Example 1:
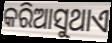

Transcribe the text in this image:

କରିଆସୁଥାଏ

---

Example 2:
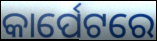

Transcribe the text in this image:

କାର୍ପେଟରେ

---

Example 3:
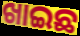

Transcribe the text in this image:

ଖାଇଛ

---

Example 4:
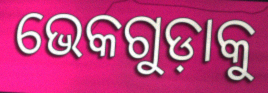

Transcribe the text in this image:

ଭେକଗୁଡ଼ାକୁ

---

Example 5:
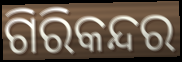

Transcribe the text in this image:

ଗିରିକନ୍ଦର